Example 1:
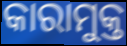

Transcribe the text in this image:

କାରାମୁକ୍ତ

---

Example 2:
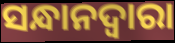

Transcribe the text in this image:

ସନ୍ଧାନଦ୍ୱାରା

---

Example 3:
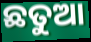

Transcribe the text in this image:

ଛତୁଆ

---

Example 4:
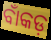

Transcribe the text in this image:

ବାଁକଡ଼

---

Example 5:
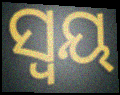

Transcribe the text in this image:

ସ୍ୱୟ